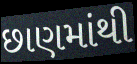
છાણમાંથી